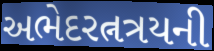
અભેદરત્નત્રયની